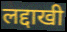
लद्दाखी